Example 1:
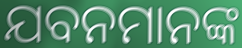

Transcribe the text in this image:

ଯବନମାନଙ୍କ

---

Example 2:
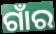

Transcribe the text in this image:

ଗାଁର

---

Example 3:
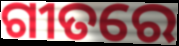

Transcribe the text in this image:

ଗୀତରେ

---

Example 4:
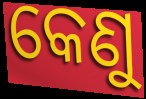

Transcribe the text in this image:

କେଣୁ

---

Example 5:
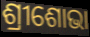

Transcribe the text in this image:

ଶ୍ରୀଶୋଭା